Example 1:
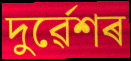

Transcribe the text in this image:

দুৰ্ৱেশৰ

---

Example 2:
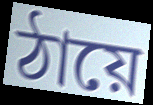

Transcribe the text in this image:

ঠায়ে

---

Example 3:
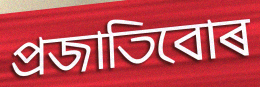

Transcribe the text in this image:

প্ৰজাতিবোৰ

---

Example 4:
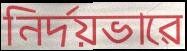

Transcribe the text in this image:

নিৰ্দয়ভাৱে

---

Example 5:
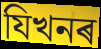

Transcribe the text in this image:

যিখনৰ